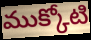
ముక్కోటి